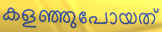
കളഞ്ഞുപോയത്